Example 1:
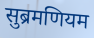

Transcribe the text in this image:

सुब्रमणियम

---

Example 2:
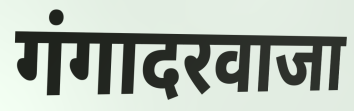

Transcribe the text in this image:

गंगादरवाजा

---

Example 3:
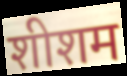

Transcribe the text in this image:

शीशम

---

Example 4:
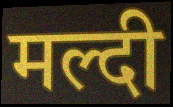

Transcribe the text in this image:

मल्दी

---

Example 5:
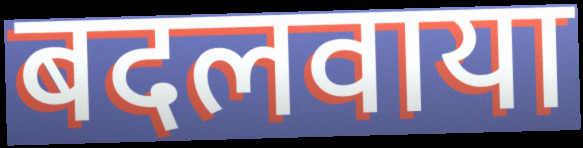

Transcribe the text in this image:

बदलवाया